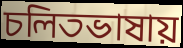
চলিতভাষায়